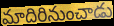
మాదిరినుంచాడు